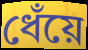
ধেঁয়ে